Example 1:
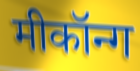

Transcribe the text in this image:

मीकॉन्ग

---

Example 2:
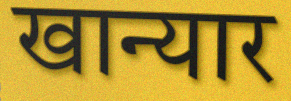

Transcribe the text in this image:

खान्यार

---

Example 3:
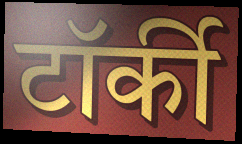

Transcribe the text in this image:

टॉर्की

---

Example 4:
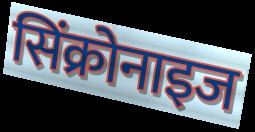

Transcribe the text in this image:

सिंक्रोनाइज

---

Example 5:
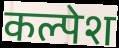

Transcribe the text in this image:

कल्पेश